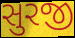
સુરજી